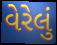
વેરેલું